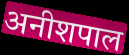
अनीशपाल